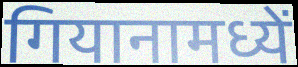
गियानामध्यें